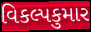
વિકલ્પકુમાર